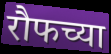
रौफच्या